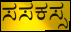
ಸಸಕಸ್ಸ